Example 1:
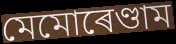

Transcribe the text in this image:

মেমোৰেণ্ডাম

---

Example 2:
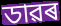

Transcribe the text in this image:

ডাৱৰ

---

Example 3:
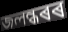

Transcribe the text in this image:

জলন্ধৰৰ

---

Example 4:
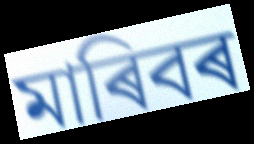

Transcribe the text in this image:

মাৰিবৰ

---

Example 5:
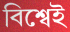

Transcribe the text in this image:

বিশ্বেই